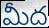
మీద